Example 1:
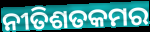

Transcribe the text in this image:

ନୀତିଶତକମର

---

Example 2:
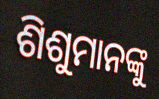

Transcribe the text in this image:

ଶିଶୁମାନଙ୍କୁ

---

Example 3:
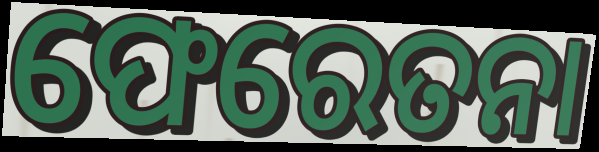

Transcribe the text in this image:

ଫେରେତନା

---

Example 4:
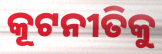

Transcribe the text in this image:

କୂଟନୀତିକୁ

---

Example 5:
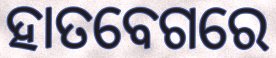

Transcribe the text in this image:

ହାତବେଗରେ